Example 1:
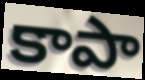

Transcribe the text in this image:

కాపా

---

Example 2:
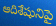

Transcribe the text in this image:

ఆదిశేషునిపై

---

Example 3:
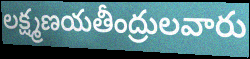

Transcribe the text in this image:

లక్ష్మణయతీంద్రులవారు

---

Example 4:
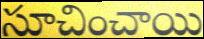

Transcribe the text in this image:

సూచించాయి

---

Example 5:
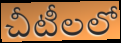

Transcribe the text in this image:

చీటీలలో